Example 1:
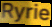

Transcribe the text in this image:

Ryrie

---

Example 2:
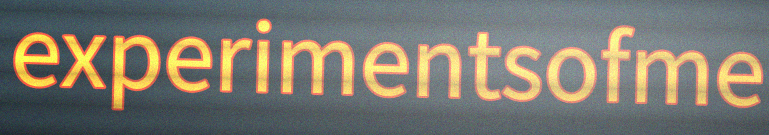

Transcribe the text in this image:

experimentsofme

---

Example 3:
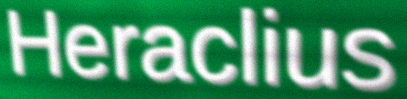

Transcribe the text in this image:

Heraclius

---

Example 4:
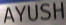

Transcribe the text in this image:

AYUSH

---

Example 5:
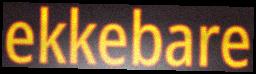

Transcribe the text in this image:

ekkebare